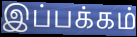
இப்பக்கம்